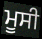
ਮੂਸੀ